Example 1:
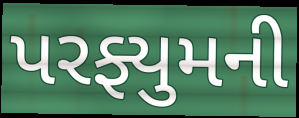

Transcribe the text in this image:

પરફ્યુમની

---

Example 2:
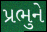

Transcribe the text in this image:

પ્રભુને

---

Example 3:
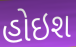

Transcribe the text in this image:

હોઇશ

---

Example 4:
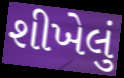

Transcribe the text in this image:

શીખેલું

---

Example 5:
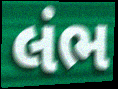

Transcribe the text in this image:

લંભ